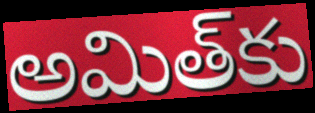
అమిత్‌కు